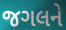
જગલને